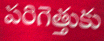
పరిగెత్తుకు